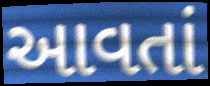
આવતાં